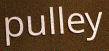
pulley